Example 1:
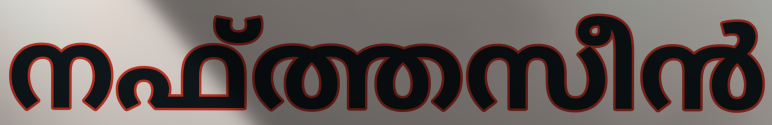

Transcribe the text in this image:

നഫ്ത്തസീൻ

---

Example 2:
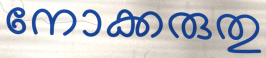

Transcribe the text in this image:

നോക്കരുതു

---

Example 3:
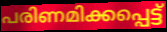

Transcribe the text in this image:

പരിണമിക്കപ്പെട്ട്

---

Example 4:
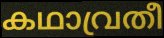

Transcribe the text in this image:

കഥാവ്രതീ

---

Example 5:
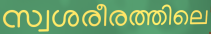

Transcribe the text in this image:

സ്വശരീരത്തിലെ